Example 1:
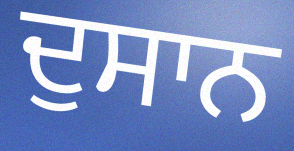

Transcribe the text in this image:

ਦੁਸਾਨ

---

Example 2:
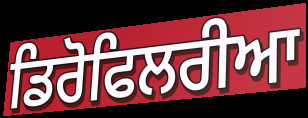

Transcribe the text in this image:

ਡਿਰੋਫਿਲਰੀਆ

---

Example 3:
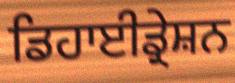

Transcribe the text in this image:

ਡਿਹਾਈਡ੍ਰੇਸ਼ਨ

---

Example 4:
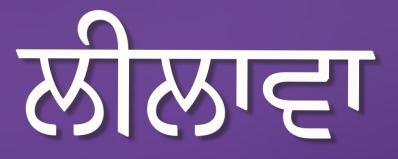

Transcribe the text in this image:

ਲੀਲਾਵਾ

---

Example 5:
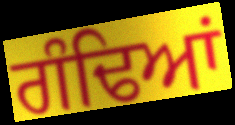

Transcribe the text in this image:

ਗੰਢਿਆਂ